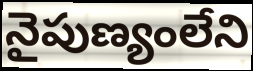
నైపుణ్యంలేని